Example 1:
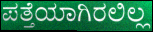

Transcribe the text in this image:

ಪತ್ತೆಯಾಗಿರಲಿಲ್ಲ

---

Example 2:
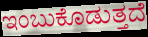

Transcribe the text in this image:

ಇಂಬುಕೊಡುತ್ತದೆ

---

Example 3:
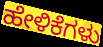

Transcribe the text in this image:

ಹೇಳಿಕೆಗಳು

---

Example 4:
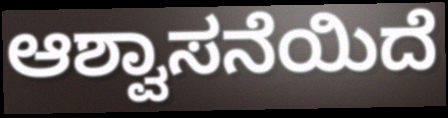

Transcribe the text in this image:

ಆಶ್ವಾಸನೆಯಿದೆ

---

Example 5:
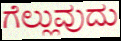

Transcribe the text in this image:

ಗೆಲ್ಲುವುದು